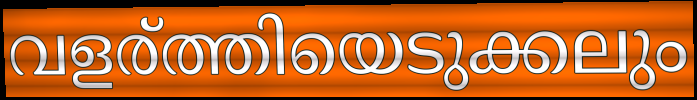
വളര്ത്തിയെടുക്കലും